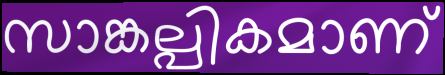
സാങ്കല്പികമാണ്